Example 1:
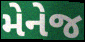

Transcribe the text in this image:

મેનેજ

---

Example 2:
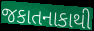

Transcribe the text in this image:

જકાતનાકાથી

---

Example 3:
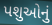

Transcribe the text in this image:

પશુઓનું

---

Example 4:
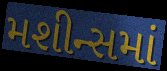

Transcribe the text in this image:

મશીન્સમાં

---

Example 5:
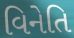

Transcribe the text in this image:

વિનેતિ